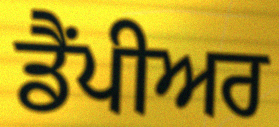
ਡੈਂਪੀਅਰ